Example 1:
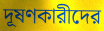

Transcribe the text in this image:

দূষণকারীদের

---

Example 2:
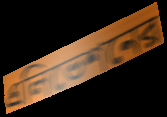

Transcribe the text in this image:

এলিভেশনের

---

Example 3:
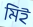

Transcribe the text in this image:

মিই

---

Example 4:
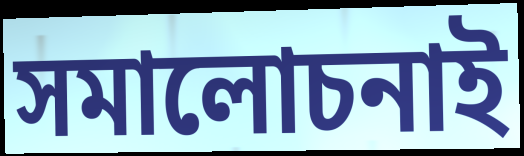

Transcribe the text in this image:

সমালোচনাই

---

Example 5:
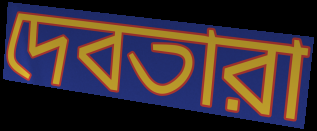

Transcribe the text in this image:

দেবতারা